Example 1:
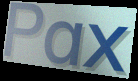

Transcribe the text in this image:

Pax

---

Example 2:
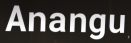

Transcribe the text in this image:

Anangu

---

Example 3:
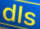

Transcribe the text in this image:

dls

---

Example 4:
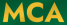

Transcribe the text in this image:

MCA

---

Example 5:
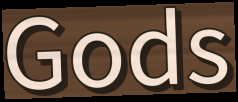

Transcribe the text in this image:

Gods